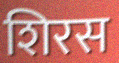
शिरस